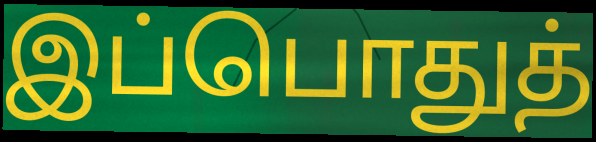
இப்பொதுத்